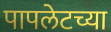
पापलेटच्या